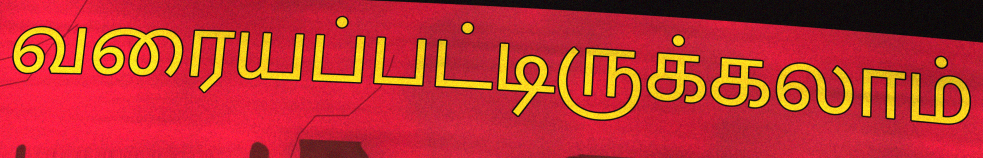
வரையப்பட்டிருக்கலாம்